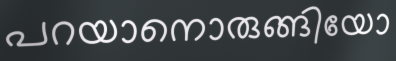
പറയാനൊരുങ്ങിയോ